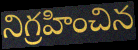
నిగ్రహించిన